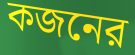
কজনের